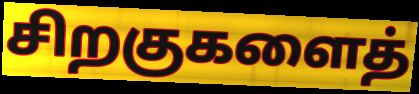
சிறகுகளைத்